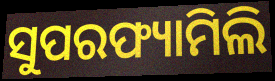
ସୁପରଫ୍ୟାମିଲି